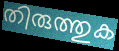
തിരുത്തുക